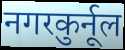
नगरकुर्नूल